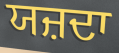
ਯਜ਼ਦਾ